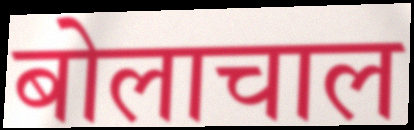
बोलाचाल